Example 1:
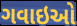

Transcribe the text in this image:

ગવાઇઓ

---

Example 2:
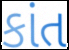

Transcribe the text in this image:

કાંત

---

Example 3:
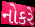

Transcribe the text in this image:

નોકરે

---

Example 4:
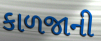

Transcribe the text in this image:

કાળજાની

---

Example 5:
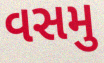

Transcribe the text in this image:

વસમુ